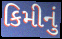
કિમીનું